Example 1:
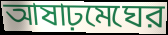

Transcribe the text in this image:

আষাঢ়মেঘের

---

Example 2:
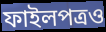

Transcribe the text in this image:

ফাইলপত্রও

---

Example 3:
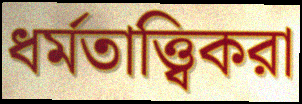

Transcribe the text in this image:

ধর্মতাত্ত্বিকরা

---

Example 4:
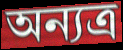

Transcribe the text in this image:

অন্যত্র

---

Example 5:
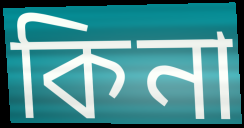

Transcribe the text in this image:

কিনা